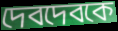
দেবদেবকে